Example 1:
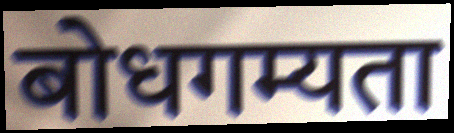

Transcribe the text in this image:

बोधगम्यता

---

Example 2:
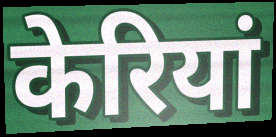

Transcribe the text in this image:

केरियां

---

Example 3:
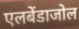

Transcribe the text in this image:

एलबेंडाजोल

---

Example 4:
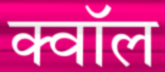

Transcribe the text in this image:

क्वॉल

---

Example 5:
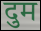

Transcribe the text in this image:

दुम